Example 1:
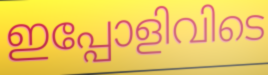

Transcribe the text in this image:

ഇപ്പോളിവിടെ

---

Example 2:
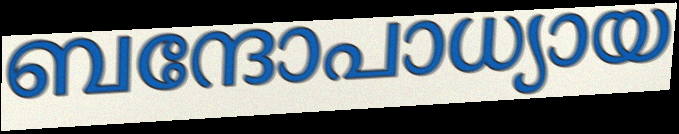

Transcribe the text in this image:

ബന്ദോപാധ്യായ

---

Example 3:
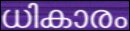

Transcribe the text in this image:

ധികാരം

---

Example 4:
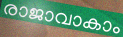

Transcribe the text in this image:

രാജാവാകാം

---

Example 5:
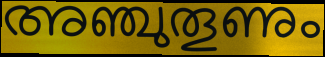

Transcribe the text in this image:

അഞ്ചുതൂണും